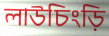
লাউচিংড়ি